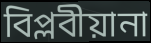
বিপ্লবীয়ানা